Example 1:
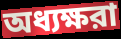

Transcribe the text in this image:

অধ্যক্ষরা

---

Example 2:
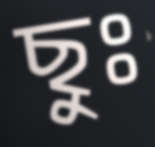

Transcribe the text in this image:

ছুঃ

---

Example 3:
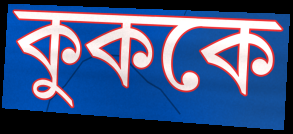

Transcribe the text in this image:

কুককে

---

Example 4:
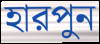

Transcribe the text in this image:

হারপুন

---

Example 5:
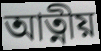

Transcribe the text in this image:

আত্নীয়